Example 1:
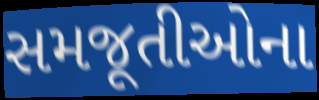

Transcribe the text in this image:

સમજૂતીઓના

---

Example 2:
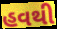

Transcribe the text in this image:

હવથી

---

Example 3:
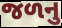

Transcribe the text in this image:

જળનુ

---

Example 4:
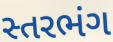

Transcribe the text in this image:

સ્તરભંગ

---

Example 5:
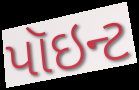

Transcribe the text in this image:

પૉઇન્ટ